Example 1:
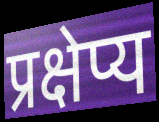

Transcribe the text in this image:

प्रक्षेप्य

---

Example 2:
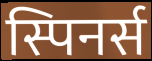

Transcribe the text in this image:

स्पिनर्स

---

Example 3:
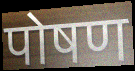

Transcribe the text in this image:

पोषण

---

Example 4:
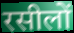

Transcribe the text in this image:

रसीलों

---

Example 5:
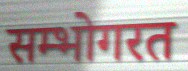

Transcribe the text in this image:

सम्भोगरत